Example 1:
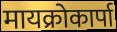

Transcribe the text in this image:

मायक्रोकार्पा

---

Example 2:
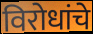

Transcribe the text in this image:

विरोधांचे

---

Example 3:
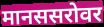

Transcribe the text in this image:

मानससरोवर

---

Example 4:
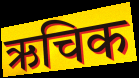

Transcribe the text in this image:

ऋचिक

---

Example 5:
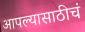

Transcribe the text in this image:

आपल्यासाठीचं